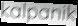
kalpanik